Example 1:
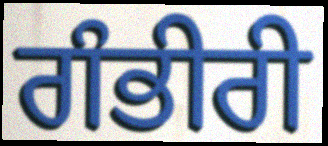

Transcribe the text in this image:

ਗੰਭੀਰੀ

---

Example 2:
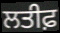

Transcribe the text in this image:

ਲਤੀਫ਼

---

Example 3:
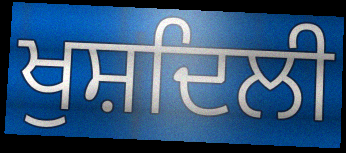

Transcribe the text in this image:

ਖੁਸ਼ਦਿਲੀ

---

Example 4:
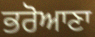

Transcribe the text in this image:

ਭਰੋਆਣਾ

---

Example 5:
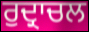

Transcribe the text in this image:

ਰੁਦ੍ਰਾਚਲ